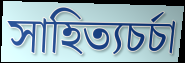
সাহিত্যচর্চা